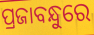
ପ୍ରଜାବନ୍ଧୁରେ